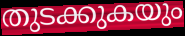
തുടക്കുകയും